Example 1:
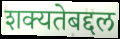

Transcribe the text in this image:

शक्यतेबद्दल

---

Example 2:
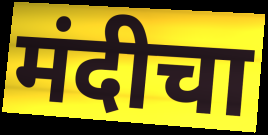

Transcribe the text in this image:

मंदीचा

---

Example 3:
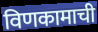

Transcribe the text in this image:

विणकामाची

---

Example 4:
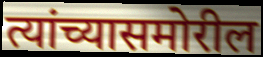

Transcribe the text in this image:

त्यांच्यासमोरील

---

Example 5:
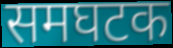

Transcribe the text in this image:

समघटक